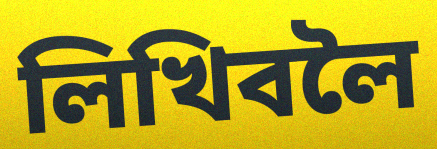
লিখিবলৈ